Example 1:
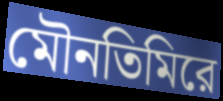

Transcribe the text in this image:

মৌনতিমিরে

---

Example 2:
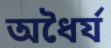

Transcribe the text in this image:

অধৈর্য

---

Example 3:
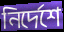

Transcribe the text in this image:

নির্দেশে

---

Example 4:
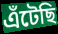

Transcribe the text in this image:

এঁটেছি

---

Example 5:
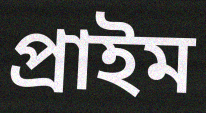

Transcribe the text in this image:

প্রাইম